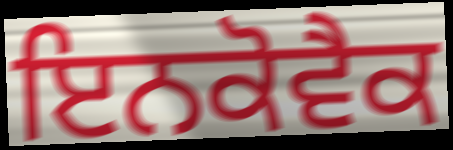
ਇਨਕੋਵੈਕ